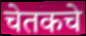
चेतकचे